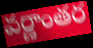
వర్ణాంతర